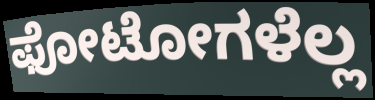
ಫೋಟೋಗಳೆಲ್ಲ